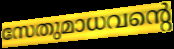
സേതുമാധവന്റെ